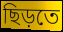
ছিড়তে